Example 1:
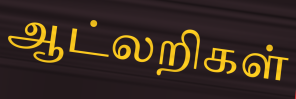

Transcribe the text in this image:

ஆட்லறிகள்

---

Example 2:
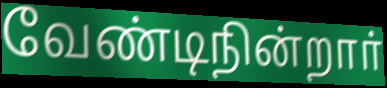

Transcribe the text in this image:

வேண்டிநின்றார்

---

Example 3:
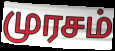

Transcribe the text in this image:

முரசம்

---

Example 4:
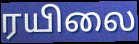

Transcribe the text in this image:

ரயிலை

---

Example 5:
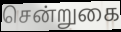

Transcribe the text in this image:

சென்றுகை